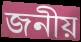
জনীয়